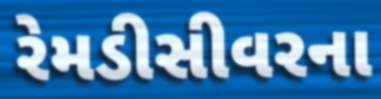
રેમડીસીવરના